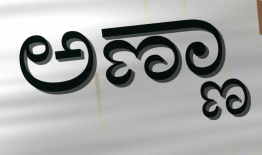
ಅಣ್ಣಾ